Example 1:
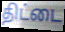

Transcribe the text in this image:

திட்டை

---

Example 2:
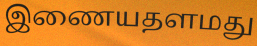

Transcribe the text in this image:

இணையதளமது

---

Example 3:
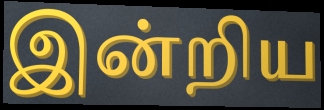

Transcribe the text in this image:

இன்றிய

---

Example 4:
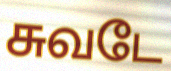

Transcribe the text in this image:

சுவடே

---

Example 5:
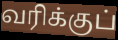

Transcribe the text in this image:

வரிக்குப்